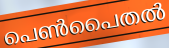
പെൺപൈതൽ